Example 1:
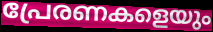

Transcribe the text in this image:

പ്രേരണകളെയും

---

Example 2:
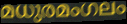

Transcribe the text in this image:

മധുരമംഗലം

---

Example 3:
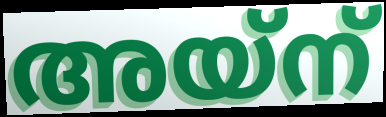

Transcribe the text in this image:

അയ്ന്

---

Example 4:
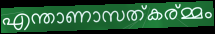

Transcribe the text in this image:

എന്താണാസത്കര്മ്മം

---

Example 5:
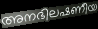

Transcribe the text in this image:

അനഭിലഷണീയ